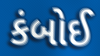
કંબોઈ